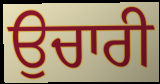
ਉਚਾਰੀ